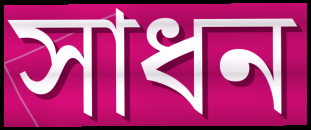
সাধন